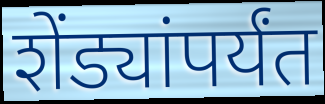
शेंड्यांपर्यंत